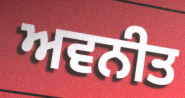
ਅਵਨੀਤ